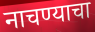
नाचण्याचा